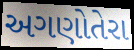
અગણોતેરા